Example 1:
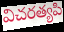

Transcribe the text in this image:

విచరత్యపి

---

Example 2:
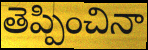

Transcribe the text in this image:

తెప్పించినా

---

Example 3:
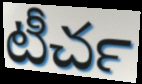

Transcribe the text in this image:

టీచర్‍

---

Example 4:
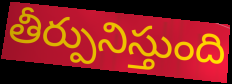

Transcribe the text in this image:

తీర్పునిస్తుంది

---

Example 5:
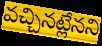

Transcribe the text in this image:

వచ్చినట్లేనని